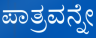
ಪಾತ್ರವನ್ನೇ